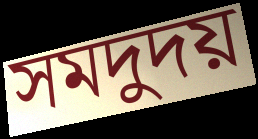
সমদুদয়